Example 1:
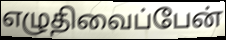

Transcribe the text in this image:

எழுதிவைப்பேன்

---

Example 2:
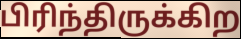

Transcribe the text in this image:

பிரிந்திருக்கிற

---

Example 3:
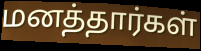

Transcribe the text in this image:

மனத்தார்கள்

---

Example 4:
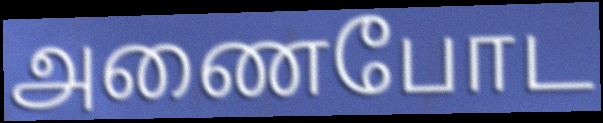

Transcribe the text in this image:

அணைபோட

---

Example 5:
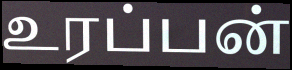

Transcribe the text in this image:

உரப்பன்